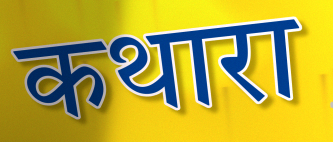
कथारा